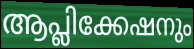
ആപ്ലിക്കേഷനും